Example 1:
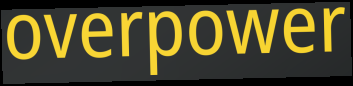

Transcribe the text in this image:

overpower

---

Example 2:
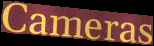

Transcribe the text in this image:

Cameras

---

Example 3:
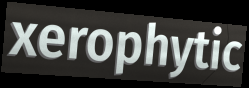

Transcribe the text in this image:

xerophytic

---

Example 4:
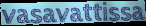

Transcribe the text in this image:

vasavattissa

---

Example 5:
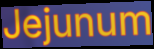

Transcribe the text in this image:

Jejunum